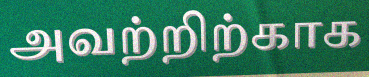
அவற்றிற்காக